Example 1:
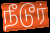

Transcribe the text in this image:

நீடூர்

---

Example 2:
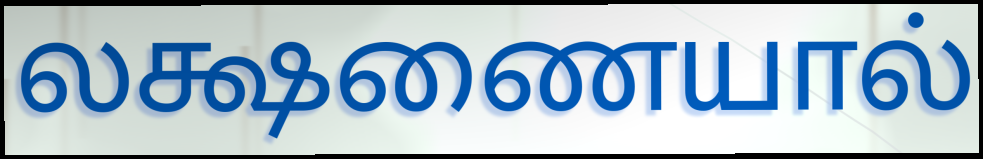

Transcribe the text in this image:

லக்ஷணையால்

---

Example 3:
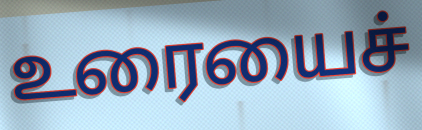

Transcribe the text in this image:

உரையைச்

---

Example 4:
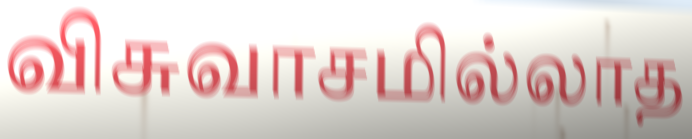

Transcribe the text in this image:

விசுவாசமில்லாத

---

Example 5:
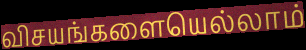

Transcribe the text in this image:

விசயங்களையெல்லாம்